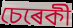
চেৰেকী